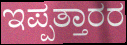
ಇಪ್ಪತ್ತಾರರ